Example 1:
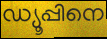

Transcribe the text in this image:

ഡ്യൂപ്പിനെ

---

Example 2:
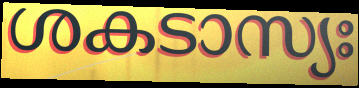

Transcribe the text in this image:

ശകടാസ്യഃ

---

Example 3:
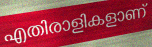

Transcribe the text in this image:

എതിരാളികളാണ്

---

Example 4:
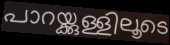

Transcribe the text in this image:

പാറയ്ക്കുള്ളിലൂടെ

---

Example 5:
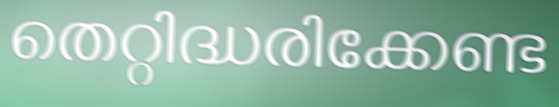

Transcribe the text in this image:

തെറ്റിദ്ധരിക്കേണ്ട